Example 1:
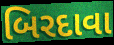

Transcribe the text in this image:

બિરદાવા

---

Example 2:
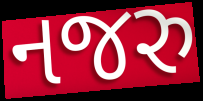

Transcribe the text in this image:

નજરુ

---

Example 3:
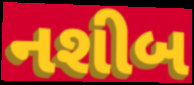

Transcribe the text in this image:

નશીબ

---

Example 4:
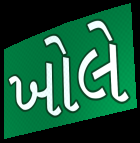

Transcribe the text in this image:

ખોલે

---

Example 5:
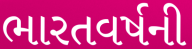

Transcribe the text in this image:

ભારતવર્ષની